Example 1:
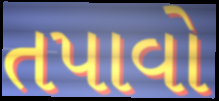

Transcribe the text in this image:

તપાવો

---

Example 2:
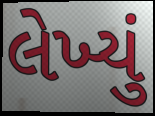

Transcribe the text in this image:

લેખ્યું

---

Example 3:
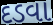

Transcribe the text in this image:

દડવા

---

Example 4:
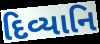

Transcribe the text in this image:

દિવ્યાનિ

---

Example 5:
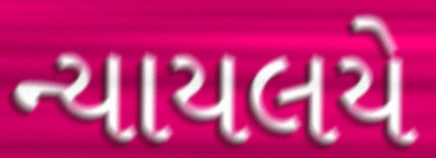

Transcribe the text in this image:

ન્યાયલયે